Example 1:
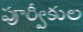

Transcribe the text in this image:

పూర్వీకుల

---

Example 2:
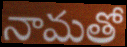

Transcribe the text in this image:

నామతో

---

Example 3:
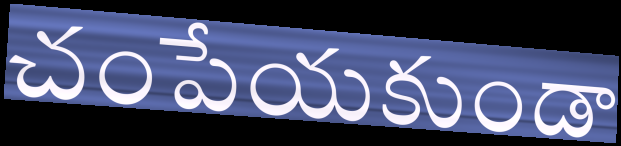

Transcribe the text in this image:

చంపేయకుండా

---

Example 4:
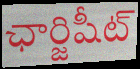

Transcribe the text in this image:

ఛార్జిషీట్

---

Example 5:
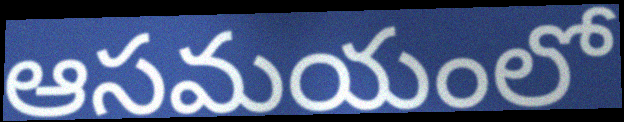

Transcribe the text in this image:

ఆసమయంలో